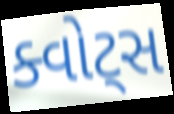
ક્વોટ્સ